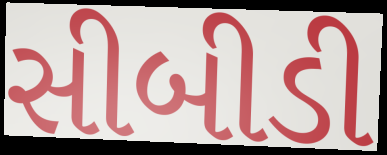
સીબીડી